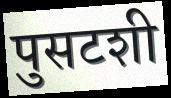
पुसटशी